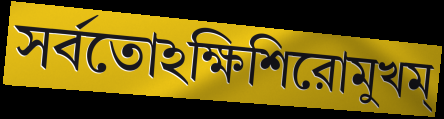
সর্বতোঽক্ষিশিরোমুখম্